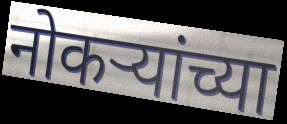
नोकर्‍यांच्या